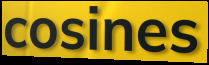
cosines